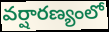
వర్షారణ్యంలో